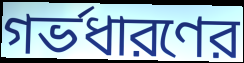
গর্ভধারণের